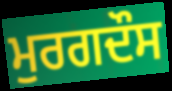
ਮੁਰਗਦੌਸ